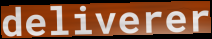
deliverer